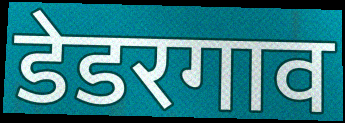
डेडरगाव